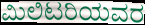
ಮಿಲಿಟರಿಯವರ